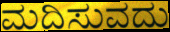
ಮದಿಸುವದು